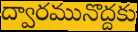
ద్వారమునొద్దకు